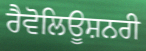
ਰੈਵੋਲਿਊਸ਼ਨਰੀ